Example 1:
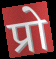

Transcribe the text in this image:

प्रो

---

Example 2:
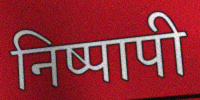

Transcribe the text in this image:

निष्पापी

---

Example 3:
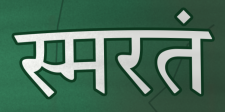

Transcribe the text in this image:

स्मरतं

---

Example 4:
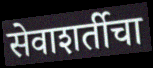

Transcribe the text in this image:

सेवाशर्तीचा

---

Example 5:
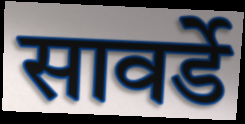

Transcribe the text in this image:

सावर्डे